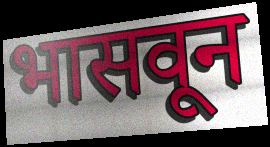
भासवून